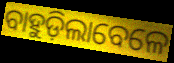
ବାହୁଡ଼ିଲାବେଳେ